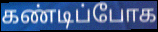
கண்டிப்போக